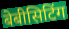
बेबीसिटिंग